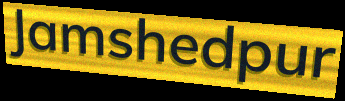
Jamshedpur